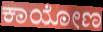
ಕಾಯೋಣ